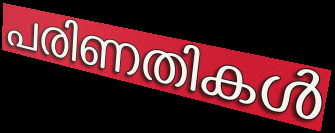
പരിണതികൾ